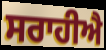
ਸਰਾਹੀਐ